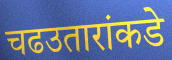
चढउतारांकडे